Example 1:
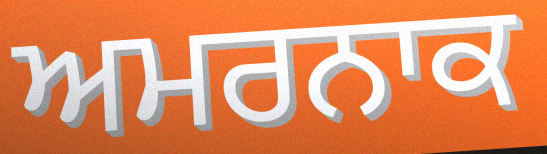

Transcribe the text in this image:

ਅਮਰਨਾਕ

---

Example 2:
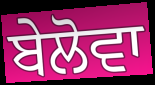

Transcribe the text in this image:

ਬੇਲੋਵਾ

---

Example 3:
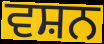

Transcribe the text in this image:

ਵਸ਼ਨ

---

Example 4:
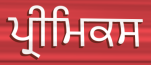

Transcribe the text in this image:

ਪ੍ਰੀਮਿਕਸ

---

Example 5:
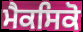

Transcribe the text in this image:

ਮੈਕਸਿਕੋ